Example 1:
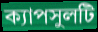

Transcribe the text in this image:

ক্যাপসুলটি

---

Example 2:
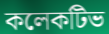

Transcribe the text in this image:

কলেকটিভ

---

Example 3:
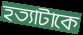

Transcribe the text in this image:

হত্যাটাকে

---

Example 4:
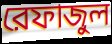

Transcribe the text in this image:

রেফাজুল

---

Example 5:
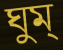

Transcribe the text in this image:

ঘুম্